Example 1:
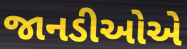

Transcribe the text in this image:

જાનડીઓએ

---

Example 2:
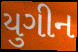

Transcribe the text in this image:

યુગીન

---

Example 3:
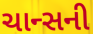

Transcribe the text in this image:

ચાન્સની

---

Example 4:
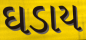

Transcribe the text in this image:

ઘડાય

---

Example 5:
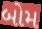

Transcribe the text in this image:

બોમ